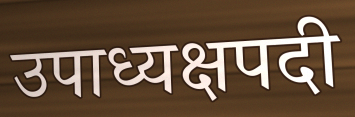
उपाध्यक्षपदी